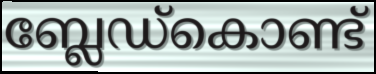
ബ്ലേഡ്കൊണ്ട്